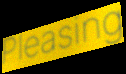
Pleasing